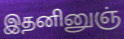
இதனினுஞ்